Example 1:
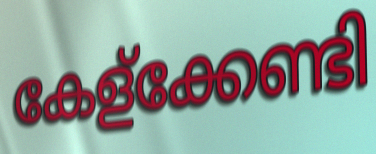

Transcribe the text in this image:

കേള്ക്കേണ്ടി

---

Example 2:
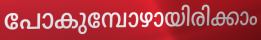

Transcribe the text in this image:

പോകുമ്പോഴായിരിക്കാം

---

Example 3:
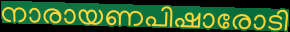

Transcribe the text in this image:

നാരായണപിഷാരോടി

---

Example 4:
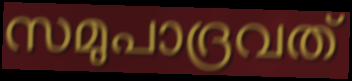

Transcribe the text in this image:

സമുപാദ്രവത്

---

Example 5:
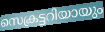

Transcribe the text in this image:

സെക്രട്ടറിയായും